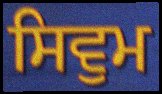
ਸਿਵੁਮ